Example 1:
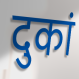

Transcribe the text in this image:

दुकां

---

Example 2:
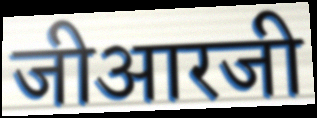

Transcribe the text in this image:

जीआरजी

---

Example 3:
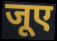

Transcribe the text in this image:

जूए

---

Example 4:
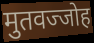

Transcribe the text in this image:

मुतवज्जोह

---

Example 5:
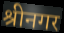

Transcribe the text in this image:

श्रीनगर